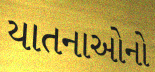
યાતનાઓનો